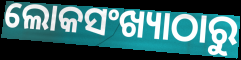
ଲୋକସଂଖ୍ୟାଠାରୁ